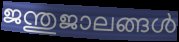
ജന്തുജാലങ്ങൾ